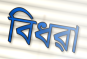
বিধৱা